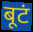
बूटं